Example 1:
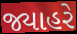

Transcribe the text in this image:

જ્યાહરે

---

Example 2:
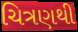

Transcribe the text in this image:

ચિત્રણથી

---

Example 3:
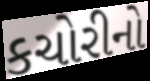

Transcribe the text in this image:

કચોરીનો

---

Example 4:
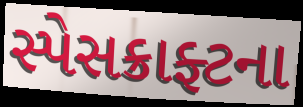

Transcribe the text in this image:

સ્પેસક્રાફ્ટના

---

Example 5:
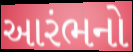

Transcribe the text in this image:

આરંભનો